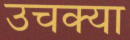
उचक्या